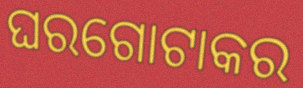
ଘରଗୋଟାକର